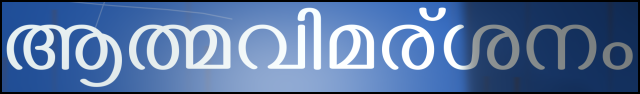
ആത്മവിമര്ശനം